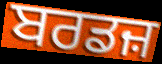
ਬਰਡਜ਼